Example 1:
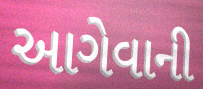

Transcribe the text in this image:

આગેવાની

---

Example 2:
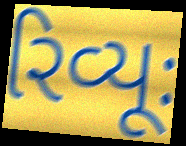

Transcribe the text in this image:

રિવ્યૂઃ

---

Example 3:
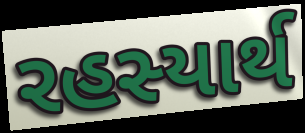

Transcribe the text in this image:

રહસ્યાર્થ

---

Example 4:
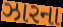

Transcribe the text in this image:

ઝારના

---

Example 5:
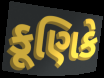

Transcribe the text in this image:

કૂણિકે